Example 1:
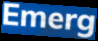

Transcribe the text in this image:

Emerg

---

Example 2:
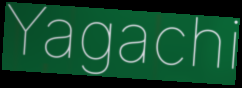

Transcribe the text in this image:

Yagachi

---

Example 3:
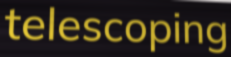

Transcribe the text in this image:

telescoping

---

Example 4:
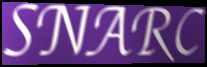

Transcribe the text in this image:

SNARC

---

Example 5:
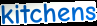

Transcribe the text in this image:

kitchens